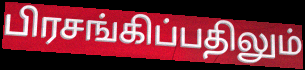
பிரசங்கிப்பதிலும்